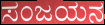
ಸಂಜಯನ